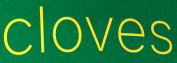
cloves